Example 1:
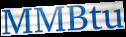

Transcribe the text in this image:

MMBtu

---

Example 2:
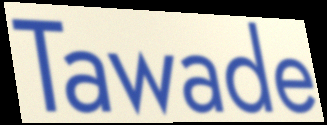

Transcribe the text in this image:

Tawade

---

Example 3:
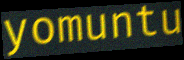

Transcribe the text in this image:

yomuntu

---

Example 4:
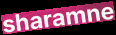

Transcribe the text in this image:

sharamne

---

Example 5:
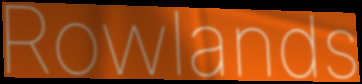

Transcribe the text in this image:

Rowlands